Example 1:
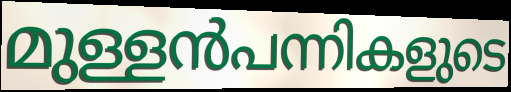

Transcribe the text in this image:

മുള്ളൻപന്നികളുടെ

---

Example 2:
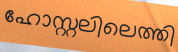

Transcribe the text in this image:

ഹോസ്റ്റലിലെത്തി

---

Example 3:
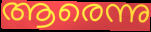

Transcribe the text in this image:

ആരെന്നു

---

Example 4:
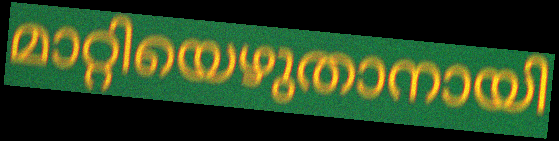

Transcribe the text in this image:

മാറ്റിയെഴുതാനായി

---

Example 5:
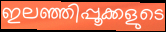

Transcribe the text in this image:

ഇലഞ്ഞിപ്പൂക്കളുടെ